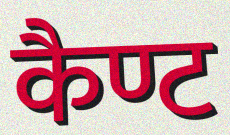
कैण्ट